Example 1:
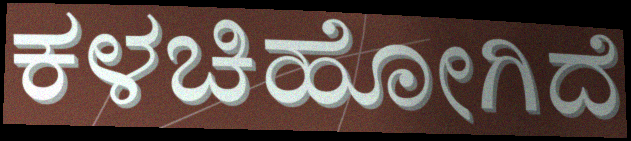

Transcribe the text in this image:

ಕಳಚಿಹೋಗಿದೆ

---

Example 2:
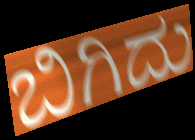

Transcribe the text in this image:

ಬಿಗಿದು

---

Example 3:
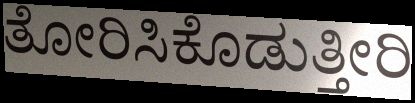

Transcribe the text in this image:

ತೋರಿಸಿಕೊಡುತ್ತೀರಿ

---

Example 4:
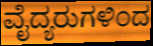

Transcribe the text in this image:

ವೈದ್ಯರುಗಳಿಂದ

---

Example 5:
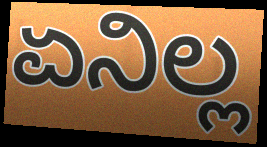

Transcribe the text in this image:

ಏನಿಲ್ಲ